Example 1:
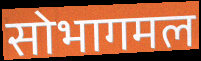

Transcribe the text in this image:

सोभागमल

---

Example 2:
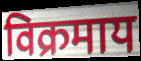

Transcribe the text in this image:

विक्रमाय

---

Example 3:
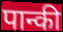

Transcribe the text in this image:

पान्की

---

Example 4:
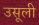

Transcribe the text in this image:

उसूली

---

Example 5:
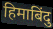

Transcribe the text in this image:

हिमाबिंदु